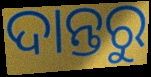
ଦାନ୍ତରୁ